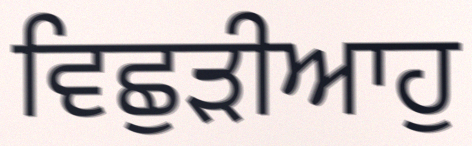
ਵਿਛੁੜੀਆਹੁ